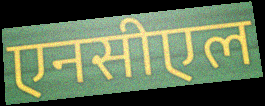
एनसीएल